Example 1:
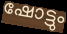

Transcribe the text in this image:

ഷോട്ടും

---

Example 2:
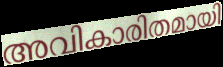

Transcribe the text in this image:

അവികാരിതമായി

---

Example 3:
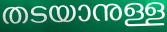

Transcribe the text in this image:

തടയാനുള്ള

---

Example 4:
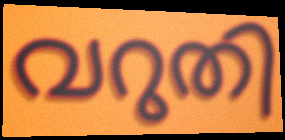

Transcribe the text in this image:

വറുതി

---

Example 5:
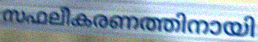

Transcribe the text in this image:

സഫലീകരണത്തിനായി